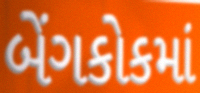
બેંગકોકમાં